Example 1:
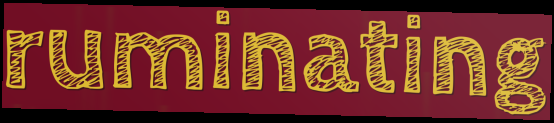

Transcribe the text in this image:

ruminating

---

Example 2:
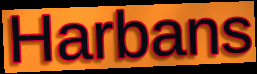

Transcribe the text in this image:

Harbans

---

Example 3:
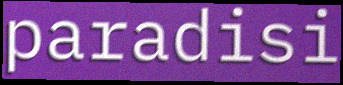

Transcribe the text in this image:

paradisi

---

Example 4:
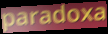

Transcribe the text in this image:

paradoxa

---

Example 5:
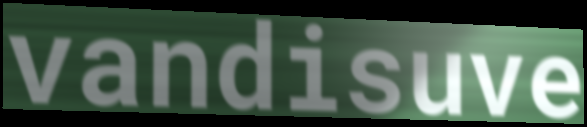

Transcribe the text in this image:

vandisuve